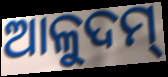
ଆଳୁଦମ୍